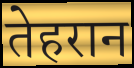
तेहरान